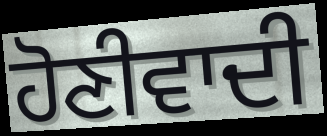
ਹੋਣੀਵਾਦੀ